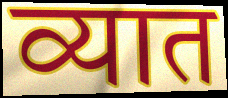
व्यात